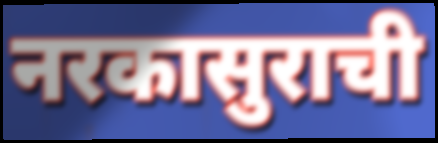
नरकासुराची